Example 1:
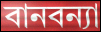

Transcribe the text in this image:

বানবন্যা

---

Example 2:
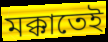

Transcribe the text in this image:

মক্কাতেই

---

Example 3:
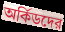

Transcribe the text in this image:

অর্কিডদের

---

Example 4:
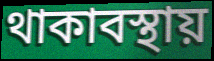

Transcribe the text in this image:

থাকাবস্থায়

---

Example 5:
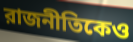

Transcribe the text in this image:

রাজনীতিকেও